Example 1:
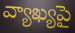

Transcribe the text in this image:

వ్యాఖ్యపై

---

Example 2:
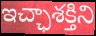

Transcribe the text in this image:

ఇచ్ఛాశక్తిని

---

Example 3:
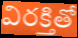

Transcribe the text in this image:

విరక్తితో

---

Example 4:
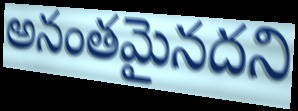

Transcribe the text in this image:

అనంతమైనదని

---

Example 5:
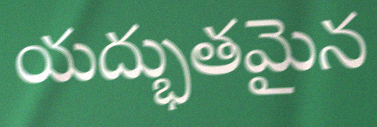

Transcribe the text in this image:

యద్భుతమైన